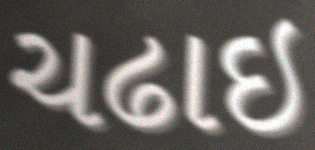
ચઢાઇ